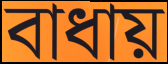
বাধায়